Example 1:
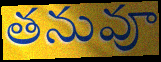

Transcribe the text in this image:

తనువూ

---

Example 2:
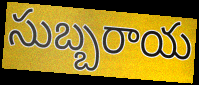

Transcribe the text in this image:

సుబ్బరాయ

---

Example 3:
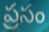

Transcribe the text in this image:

ప్రసం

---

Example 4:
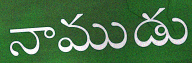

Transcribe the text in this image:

నాముడు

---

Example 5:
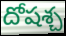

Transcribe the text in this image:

దోషశ్చ